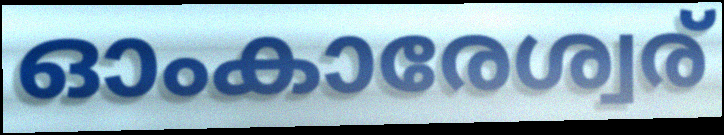
ഓംകാരേശ്വര്